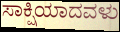
ಸಾಕ್ಷಿಯಾದವಳು